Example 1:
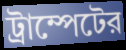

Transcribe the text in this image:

ট্রাম্পেটের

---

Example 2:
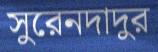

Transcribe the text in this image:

সুরেনদাদুর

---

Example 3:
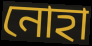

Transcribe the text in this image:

নোহা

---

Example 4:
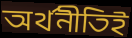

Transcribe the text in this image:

অর্থনীতিই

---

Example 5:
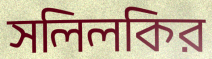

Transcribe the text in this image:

সলিলকির